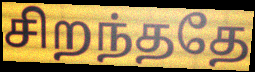
சிறந்ததே